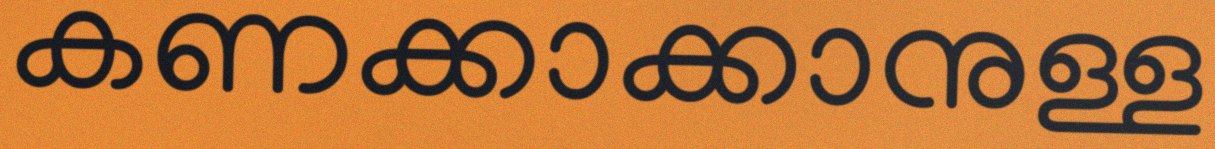
കണക്കാക്കാനുള്ള